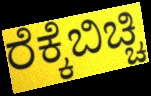
ರೆಕ್ಕೆಬಿಚ್ಚಿ